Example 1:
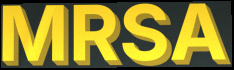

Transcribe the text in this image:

MRSA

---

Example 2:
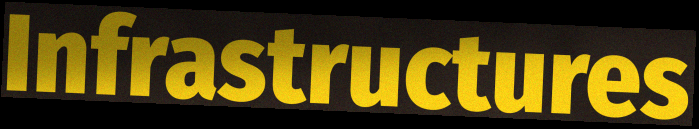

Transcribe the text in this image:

Infrastructures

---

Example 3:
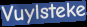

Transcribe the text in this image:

Vuylsteke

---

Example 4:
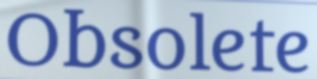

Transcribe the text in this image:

Obsolete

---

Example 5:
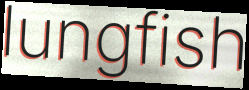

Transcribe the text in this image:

lungfish